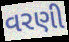
વરણી